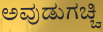
ಅವುಡುಗಚ್ಚಿ